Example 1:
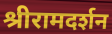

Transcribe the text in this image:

श्रीरामदर्शन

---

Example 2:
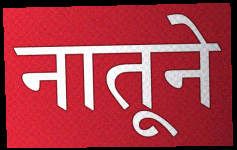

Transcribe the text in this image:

नातूने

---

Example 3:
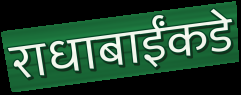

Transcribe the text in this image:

राधाबाईंकडे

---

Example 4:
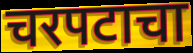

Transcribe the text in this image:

चरपटाचा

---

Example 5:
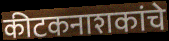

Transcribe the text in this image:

कीटकनाशकांचे